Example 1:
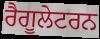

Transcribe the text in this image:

ਰੈਗੂਲੇਟਰਨ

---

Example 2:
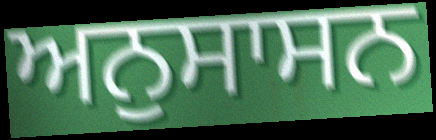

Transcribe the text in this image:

ਅਨੁਸਾਸਨ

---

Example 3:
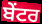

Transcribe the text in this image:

ਬੇਂਟਰ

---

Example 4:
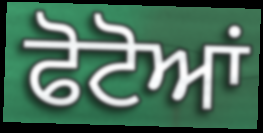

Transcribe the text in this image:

ਫੋਟੋਆਂ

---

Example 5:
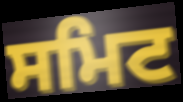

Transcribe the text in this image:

ਸਮਿਟ